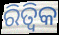
ରିତ୍ୱିକ